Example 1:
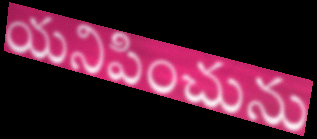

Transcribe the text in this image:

యనిపించును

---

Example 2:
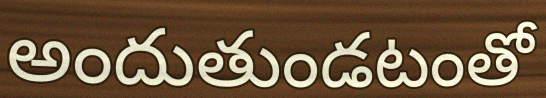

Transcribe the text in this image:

అందుతుండటంతో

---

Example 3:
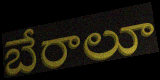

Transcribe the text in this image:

బేరాలూ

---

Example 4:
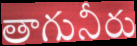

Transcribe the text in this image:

తాగునీరు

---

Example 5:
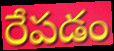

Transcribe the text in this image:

రేపడం